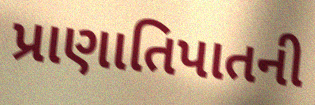
પ્રાણાતિપાતની